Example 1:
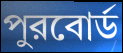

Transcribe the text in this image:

পুরবোর্ড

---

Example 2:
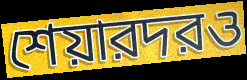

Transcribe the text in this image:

শেয়ারদরও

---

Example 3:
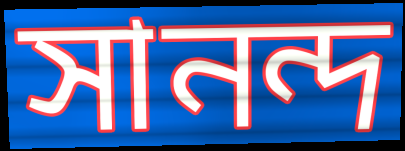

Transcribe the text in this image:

সানন্দ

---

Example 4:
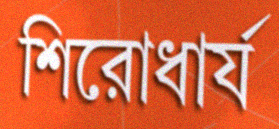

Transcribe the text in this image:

শিরোধার্য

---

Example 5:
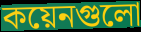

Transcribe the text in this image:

কয়েনগুলো